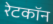
रेटकॉन